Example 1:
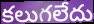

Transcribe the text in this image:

కలుగలేదు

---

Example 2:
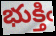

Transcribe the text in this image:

భుక్తిఁ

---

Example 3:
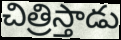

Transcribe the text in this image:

చిత్రిస్తాడు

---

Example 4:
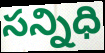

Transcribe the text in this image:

సన్నిధి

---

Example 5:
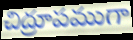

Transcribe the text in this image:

చిద్రూపముగా